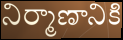
నిర్మాణానికి